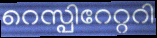
റെസ്പിറേറ്ററി